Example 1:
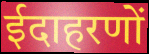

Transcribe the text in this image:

ईदाहरणों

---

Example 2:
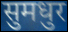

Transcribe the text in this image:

सुमधुर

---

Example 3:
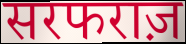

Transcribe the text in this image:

सरफराज़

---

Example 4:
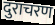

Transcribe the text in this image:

दुराचरण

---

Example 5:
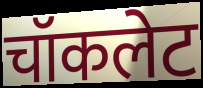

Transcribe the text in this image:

चॉकलेट